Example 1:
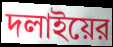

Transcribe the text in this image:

দলাইয়ের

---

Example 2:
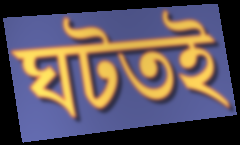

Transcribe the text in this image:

ঘটতই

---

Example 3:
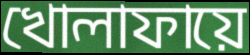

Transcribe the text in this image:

খোলাফায়ে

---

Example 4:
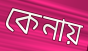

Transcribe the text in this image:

কেনায়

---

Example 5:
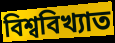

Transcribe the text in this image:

বিশ্ববিখ্যাত